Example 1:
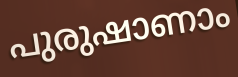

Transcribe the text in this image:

പുരുഷാണാം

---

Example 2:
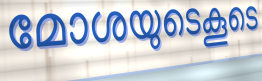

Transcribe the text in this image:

മോശയുടെകൂടെ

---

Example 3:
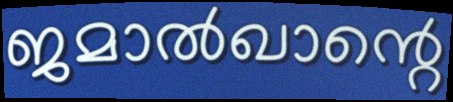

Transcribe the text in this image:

ജമാൽഖാന്റെ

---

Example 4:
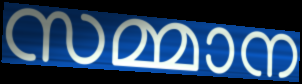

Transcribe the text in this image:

സമ്മാന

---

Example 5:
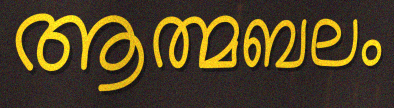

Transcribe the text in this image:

ആത്മബലം